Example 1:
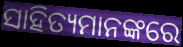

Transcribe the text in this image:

ସାହିତ୍ୟମାନଙ୍କରେ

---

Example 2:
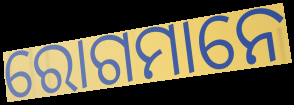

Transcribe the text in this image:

ରୋଗମାନେ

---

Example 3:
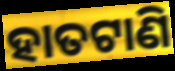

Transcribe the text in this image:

ହାତଟାଣି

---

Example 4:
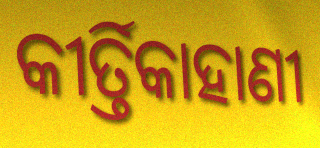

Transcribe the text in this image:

କୀର୍ତ୍ତିକାହାଣୀ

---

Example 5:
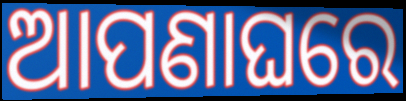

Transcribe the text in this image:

ଆପଣାଘରେ